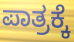
ಪಾತ್ರಕ್ಕೆ